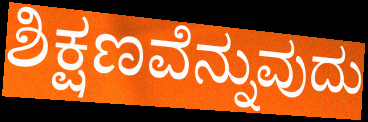
ಶಿಕ್ಷಣವೆನ್ನುವುದು